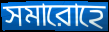
সমারোহে